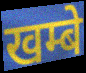
खम्बे